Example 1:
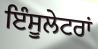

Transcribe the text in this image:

ਇੰਸੂਲੇਟਰਾਂ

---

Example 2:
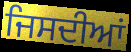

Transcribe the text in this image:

ਜਿਸਦੀਆਂ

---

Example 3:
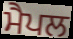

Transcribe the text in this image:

ਮੈਪਲ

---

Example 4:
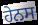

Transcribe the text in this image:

ਹੇਨਸ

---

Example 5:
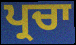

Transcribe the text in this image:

ਪ੍ਰਚਾ